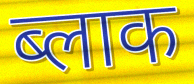
ब्लाक